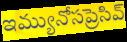
ఇమ్యునోసప్రెసివ్